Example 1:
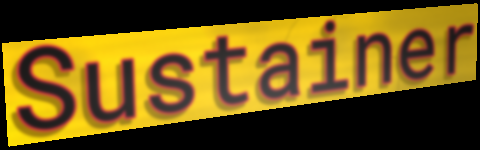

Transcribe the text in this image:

Sustainer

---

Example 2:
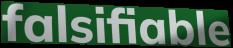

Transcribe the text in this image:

falsifiable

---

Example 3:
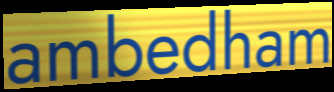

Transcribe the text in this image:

ambedham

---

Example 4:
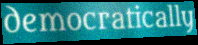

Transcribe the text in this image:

democratically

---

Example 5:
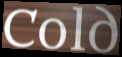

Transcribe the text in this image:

Cold